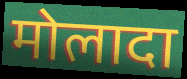
मोलादा